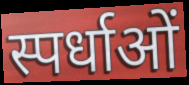
स्पर्धाओं